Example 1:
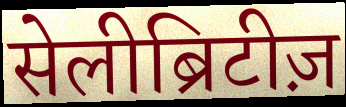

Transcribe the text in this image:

सेलीब्रिटीज़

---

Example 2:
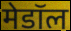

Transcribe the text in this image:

मेडॉल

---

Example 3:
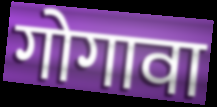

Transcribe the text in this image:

गोगावा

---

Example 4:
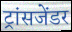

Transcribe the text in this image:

ट्रांसजेंडर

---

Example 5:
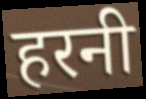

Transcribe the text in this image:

हरनी